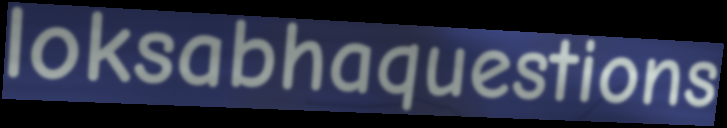
loksabhaquestions